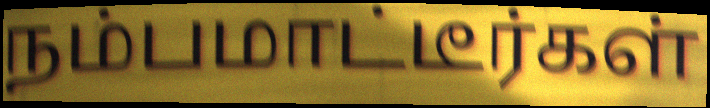
நம்பமாட்டீர்கள்